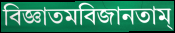
বিজ্ঞাতমবিজানতাম্